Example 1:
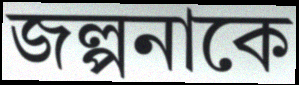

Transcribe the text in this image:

জল্পনাকে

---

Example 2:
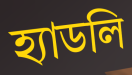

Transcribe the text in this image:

হ্যাডলি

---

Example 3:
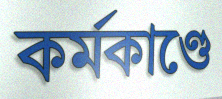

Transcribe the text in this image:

কর্মকাণ্ডে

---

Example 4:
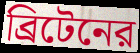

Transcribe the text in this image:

ব্রিটেনের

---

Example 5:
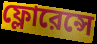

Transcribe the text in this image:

ফ্লোরেন্সে